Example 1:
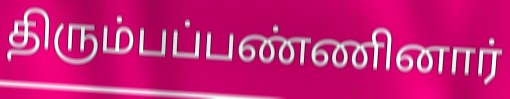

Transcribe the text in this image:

திரும்பப்பண்ணினார்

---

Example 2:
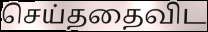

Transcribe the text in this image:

செய்ததைவிட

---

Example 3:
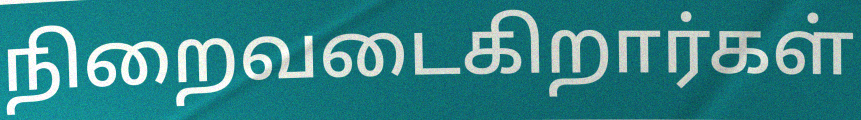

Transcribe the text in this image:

நிறைவடைகிறார்கள்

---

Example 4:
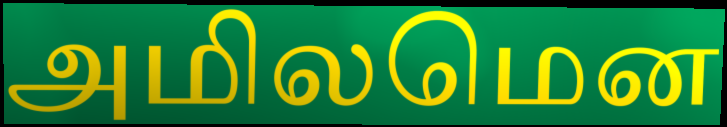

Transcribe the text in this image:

அமிலமென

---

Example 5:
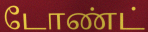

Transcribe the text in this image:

டோண்ட்